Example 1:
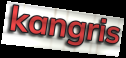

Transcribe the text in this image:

kangris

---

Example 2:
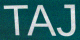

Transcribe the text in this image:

TAJ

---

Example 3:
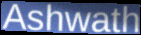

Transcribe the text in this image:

Ashwath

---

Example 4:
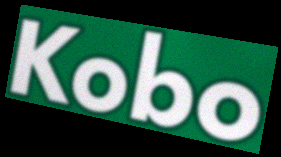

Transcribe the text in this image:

Kobo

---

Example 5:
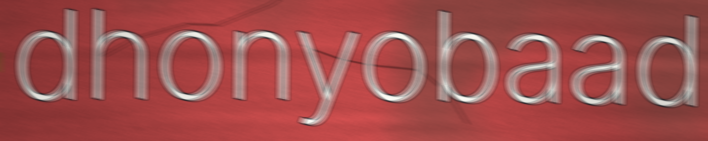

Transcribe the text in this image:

dhonyobaad